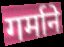
गर्माने